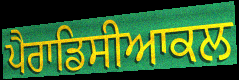
ਪੈਰਾਡਿਸੀਆਕਲ